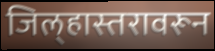
जिल्हास्तरावरून